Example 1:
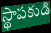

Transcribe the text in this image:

స్థాపకుడి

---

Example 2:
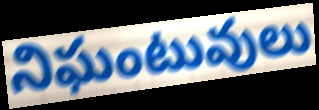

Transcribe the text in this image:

నిఘంటువులు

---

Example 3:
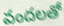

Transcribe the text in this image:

వందలతో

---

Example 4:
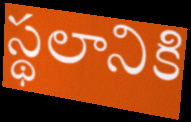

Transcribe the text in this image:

స్థలానికి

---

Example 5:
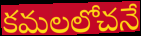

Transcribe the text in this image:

కమలలోచనే